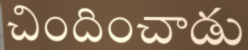
చిందించాడు